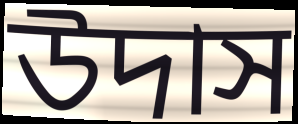
উদাস